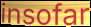
insofar